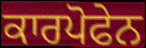
ਕਾਰਪੋਫੇਨ